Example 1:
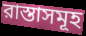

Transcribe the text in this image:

রাস্তাসমূহ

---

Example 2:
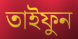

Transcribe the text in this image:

তাইফুন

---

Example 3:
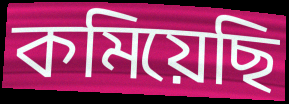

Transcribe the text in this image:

কমিয়েছি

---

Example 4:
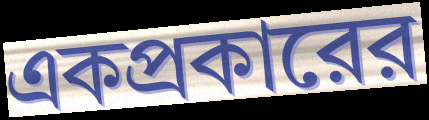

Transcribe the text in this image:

একপ্রকারের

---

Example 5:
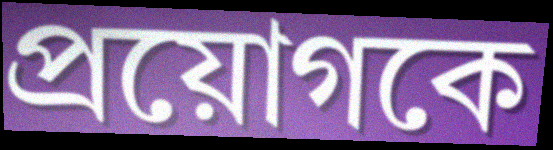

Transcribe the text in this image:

প্রয়োগকে